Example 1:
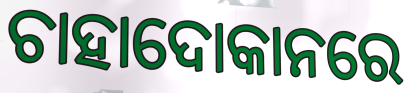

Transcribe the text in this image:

ଚାହାଦୋକାନରେ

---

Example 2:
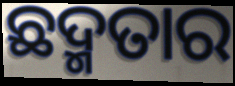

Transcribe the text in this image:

ଛଦ୍ମତାର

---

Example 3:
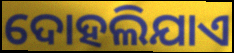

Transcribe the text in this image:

ଦୋହଲିଯାଏ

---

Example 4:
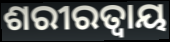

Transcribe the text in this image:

ଶରୀରତ୍ୱାୟ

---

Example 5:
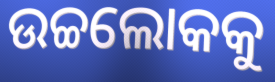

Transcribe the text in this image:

ଉଚ୍ଚଲୋକକୁ